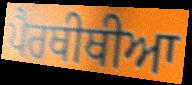
ਪੈਰਥੀਥੀਆ